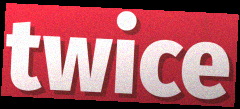
twice